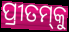
ପ୍ରୀତମ୍‌କୁ